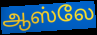
ஆஸ்லே